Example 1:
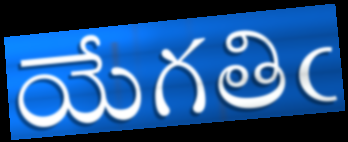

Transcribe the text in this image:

యేగతిఁ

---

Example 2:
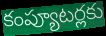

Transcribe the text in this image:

కంప్యూటర్లకు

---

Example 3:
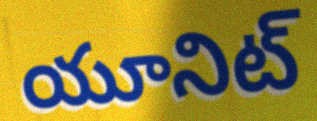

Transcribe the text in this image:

యూనిట్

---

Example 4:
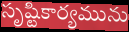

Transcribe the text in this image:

సృష్టికార్యమును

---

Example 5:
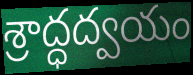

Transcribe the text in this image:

శ్రాద్ధద్వయం